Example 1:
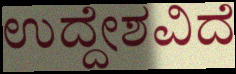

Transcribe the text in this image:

ಉದ್ದೇಶವಿದೆ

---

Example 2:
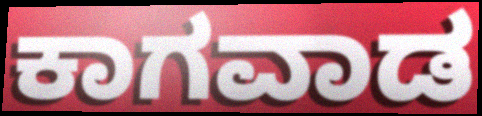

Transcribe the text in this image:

ಕಾಗವಾಡ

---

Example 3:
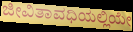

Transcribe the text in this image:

ಜೀವಿತಾವಧಿಯಲ್ಲಿಯೇ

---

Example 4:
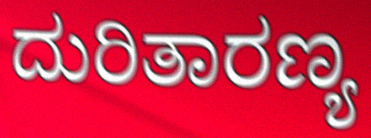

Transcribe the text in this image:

ದುರಿತಾರಣ್ಯ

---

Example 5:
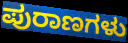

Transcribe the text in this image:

ಪುರಾಣಗಳು